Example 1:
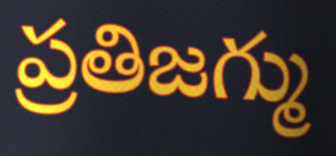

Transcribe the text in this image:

ప్రతిజగ్ము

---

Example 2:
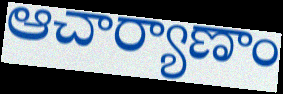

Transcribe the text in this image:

ఆచార్యాణాం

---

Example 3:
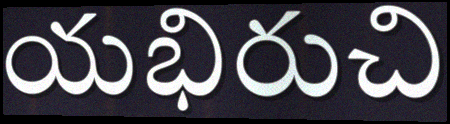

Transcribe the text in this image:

యభిరుచి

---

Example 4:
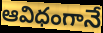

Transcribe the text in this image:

ఆవిధంగానే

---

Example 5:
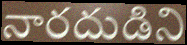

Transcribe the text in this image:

నారదుడిని